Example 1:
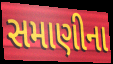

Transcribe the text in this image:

સમાણીના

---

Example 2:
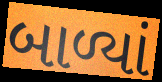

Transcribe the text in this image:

બાળ્યાં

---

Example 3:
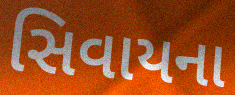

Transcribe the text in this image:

સિવાયના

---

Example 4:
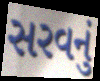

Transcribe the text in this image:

સરવનું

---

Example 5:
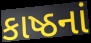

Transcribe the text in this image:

કાષ્ઠનાં